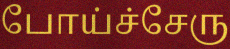
போய்ச்சேரு